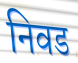
निवड